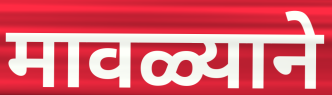
मावळ्याने